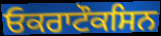
ਓਕਰਾਟੌਕਸਿਨ